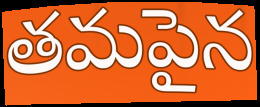
తమపైన